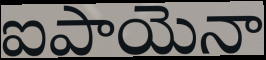
ఐపాయెనా